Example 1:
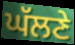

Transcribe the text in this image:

ਘੱਲਣੇ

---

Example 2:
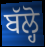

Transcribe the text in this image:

ਬੱਲ੍ਹੋ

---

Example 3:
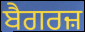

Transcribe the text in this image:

ਬੈਗਰਜ਼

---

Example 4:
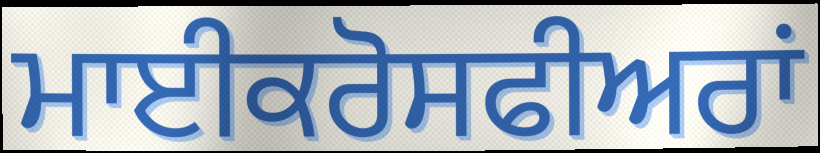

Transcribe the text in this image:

ਮਾਈਕਰੋਸਫੀਅਰਾਂ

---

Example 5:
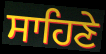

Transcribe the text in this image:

ਸਾਹਿਣੇ